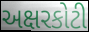
અક્ષરકોટી